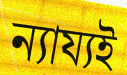
ন্যায্যই